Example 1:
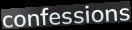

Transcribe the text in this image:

confessions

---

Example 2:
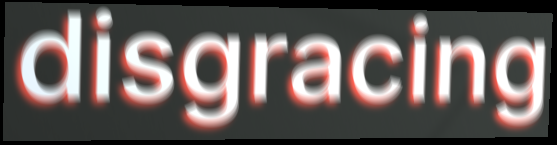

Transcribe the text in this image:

disgracing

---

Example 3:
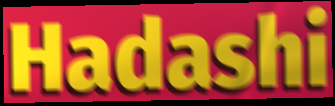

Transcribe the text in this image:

Hadashi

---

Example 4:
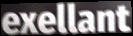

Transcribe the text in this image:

exellant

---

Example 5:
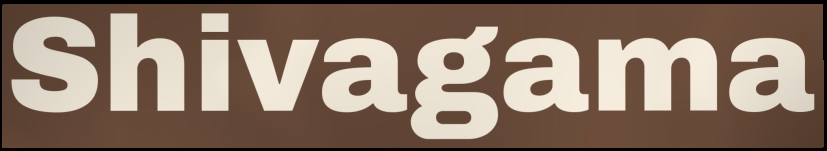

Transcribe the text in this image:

Shivagama